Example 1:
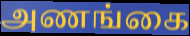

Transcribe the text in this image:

அணங்கை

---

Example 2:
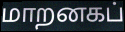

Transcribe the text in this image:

மாறனகப்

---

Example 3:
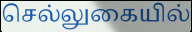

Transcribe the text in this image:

செல்லுகையில்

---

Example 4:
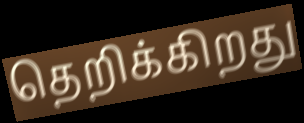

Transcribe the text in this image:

தெறிக்கிறது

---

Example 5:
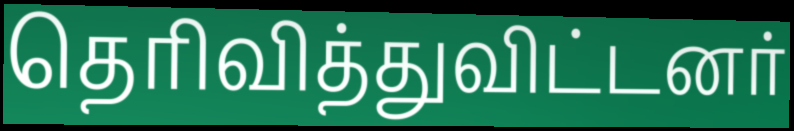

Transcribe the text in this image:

தெரிவித்துவிட்டனர்